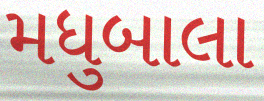
મધુબાલા